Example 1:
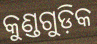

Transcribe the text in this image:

କୁଣ୍ଡଗୁଡ଼ିକ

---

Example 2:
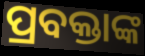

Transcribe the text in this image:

ପ୍ରବକ୍ତାଙ୍କ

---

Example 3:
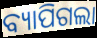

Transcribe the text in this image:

ବ୍ୟାପିଗଲା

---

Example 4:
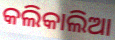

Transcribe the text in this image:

କଲିକାଲିଆ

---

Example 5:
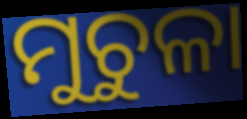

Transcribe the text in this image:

ମୁଚୁଳା